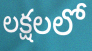
లక్షలలో